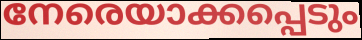
നേരെയാക്കപ്പെടും